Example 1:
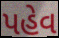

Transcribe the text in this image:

પહેવ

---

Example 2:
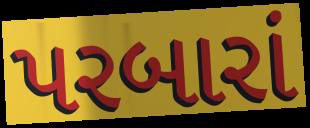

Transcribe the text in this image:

પરબારાં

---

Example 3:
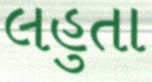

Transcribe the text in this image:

લહુતા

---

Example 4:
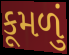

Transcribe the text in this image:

કૂમળું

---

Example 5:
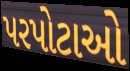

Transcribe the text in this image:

પરપોટાઓ